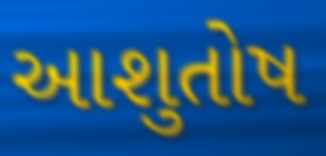
આશુતોષ